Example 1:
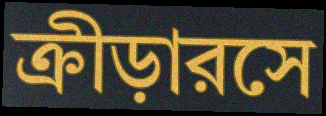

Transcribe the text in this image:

ক্রীড়ারসে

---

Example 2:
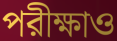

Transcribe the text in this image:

পরীক্ষাও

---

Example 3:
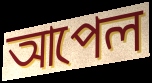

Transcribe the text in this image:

আপেল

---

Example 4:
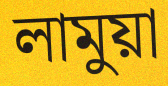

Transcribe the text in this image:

লামুয়া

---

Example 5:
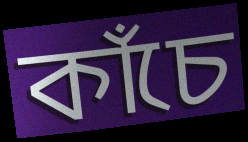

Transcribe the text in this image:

কাঁচে